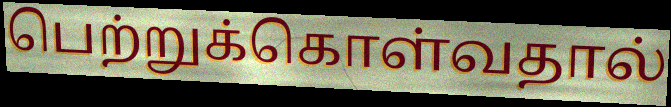
பெற்றுக்கொள்வதால்